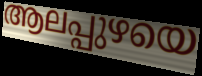
ആലപ്പുഴയെ